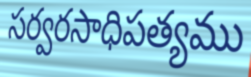
సర్వరసాధిపత్యము